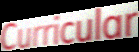
Curricular